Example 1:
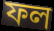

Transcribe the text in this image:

ফল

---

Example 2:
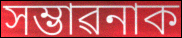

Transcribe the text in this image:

সম্ভাৱনাক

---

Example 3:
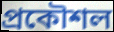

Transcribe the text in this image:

প্ৰকৌশল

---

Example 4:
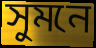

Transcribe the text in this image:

সুমনে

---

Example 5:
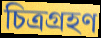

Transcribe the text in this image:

চিত্ৰগ্ৰহণ